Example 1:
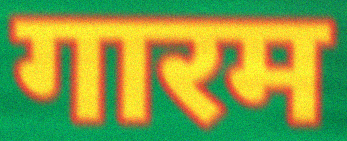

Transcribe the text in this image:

गारम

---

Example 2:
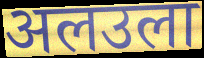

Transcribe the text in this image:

अलउला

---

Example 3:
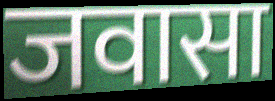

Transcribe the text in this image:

जवासा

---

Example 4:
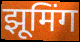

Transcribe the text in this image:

झूमिंग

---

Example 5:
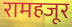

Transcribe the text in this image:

रामहजूर